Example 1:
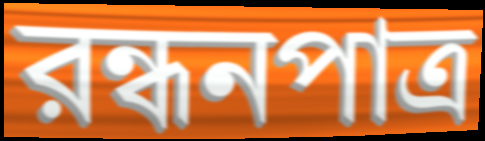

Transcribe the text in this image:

রন্ধনপাত্র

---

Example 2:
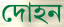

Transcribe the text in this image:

দোহন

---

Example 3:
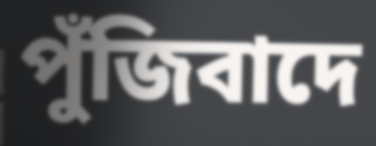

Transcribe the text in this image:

পুঁজিবাদে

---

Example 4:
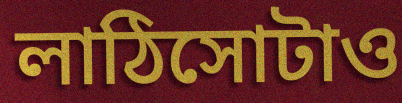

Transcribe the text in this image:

লাঠিসোটাও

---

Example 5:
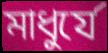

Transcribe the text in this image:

মাধুর্যে